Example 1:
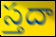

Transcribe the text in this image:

స్తదా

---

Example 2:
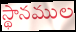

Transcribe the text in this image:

స్థానముల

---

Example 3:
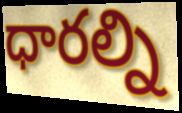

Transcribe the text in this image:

ధారల్ని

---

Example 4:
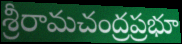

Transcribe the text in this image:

శ్రీరామచంద్రప్రభూ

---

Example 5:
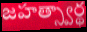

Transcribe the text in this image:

జహత్స్వార్థ